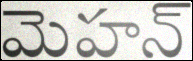
మెహన్